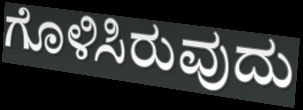
ಗೊಳಿಸಿರುವುದು